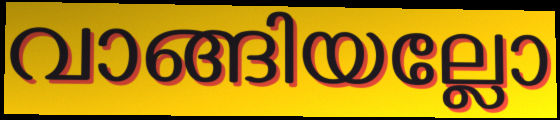
വാങ്ങിയല്ലോ